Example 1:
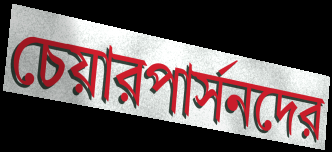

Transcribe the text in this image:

চেয়ারপার্সনদের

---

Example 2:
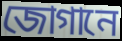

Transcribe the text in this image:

জোগানে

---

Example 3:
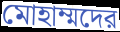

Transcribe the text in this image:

মোহাম্মদের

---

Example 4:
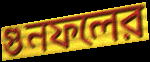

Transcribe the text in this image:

গুনফলের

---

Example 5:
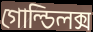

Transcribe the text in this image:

গোল্ডিলক্স